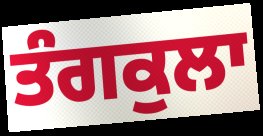
ਤੰਗਕੁਲਾ